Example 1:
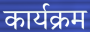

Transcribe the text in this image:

कार्यक्रम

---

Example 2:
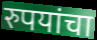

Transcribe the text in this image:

रुपयांचा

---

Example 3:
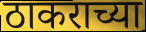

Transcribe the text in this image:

ठाकराच्या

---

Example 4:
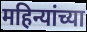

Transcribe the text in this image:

महिन्यांच्या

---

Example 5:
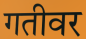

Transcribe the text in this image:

गतीवर